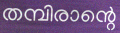
തമ്പിരാന്റെ